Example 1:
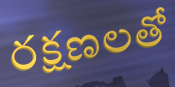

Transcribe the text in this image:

రక్షణలతో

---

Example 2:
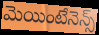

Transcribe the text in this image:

మెయింటేనెన్స్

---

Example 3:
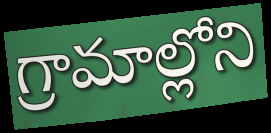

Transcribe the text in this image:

గ్రామాల్లోని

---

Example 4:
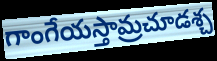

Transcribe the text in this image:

గాంగేయస్తామ్రచూడశ్చ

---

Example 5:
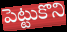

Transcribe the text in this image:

పెట్టుకొని